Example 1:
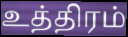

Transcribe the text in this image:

உத்திரம்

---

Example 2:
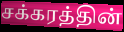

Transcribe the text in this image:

சக்கரத்தின்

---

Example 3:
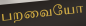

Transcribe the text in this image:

பறவையோ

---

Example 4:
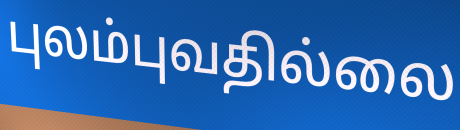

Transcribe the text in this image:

புலம்புவதில்லை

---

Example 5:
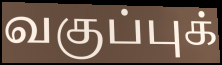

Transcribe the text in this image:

வகுப்புக்